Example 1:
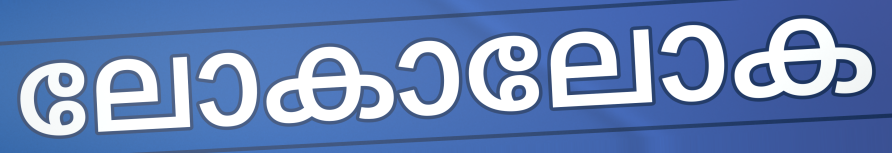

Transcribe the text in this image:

ലോകാലോക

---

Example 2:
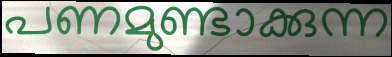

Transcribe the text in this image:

പണമുണ്ടാക്കുന്ന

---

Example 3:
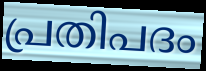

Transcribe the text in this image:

പ്രതിപദം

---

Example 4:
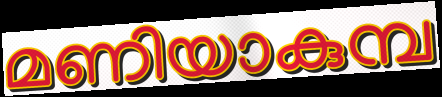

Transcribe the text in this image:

മണിയാകുമ്പ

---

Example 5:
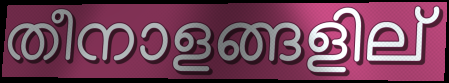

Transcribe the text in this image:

തീനാളങ്ങളില്